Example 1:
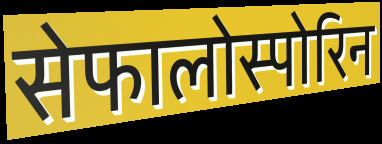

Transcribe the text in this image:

सेफालोस्पोरिन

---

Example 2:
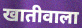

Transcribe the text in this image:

खातीवाला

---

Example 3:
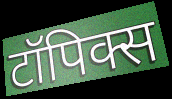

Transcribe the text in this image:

टॉपिक्स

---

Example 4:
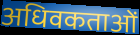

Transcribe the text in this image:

अधिवकताओं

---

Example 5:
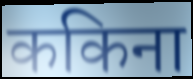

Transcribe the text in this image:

ककिना